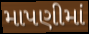
માપણીમાં